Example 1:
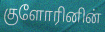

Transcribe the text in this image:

குளோரினின்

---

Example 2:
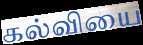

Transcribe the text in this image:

கல்வியை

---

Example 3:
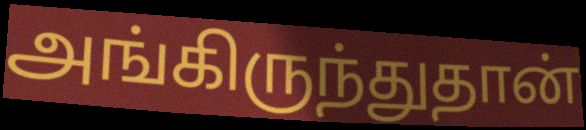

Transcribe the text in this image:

அங்கிருந்துதான்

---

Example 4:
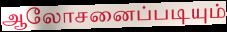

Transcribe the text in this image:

ஆலோசனைப்படியும்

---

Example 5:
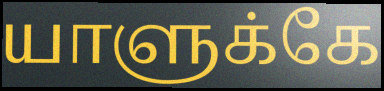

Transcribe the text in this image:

யாளுக்கே